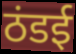
ठंडई